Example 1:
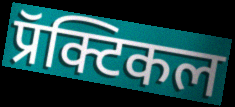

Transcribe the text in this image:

प्रॅक्टिकल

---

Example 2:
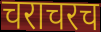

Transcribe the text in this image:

चराचरच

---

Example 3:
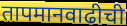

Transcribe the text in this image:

तापमानवाढीची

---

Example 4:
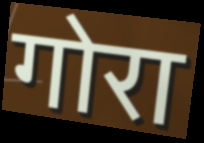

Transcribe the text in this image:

गोरा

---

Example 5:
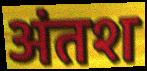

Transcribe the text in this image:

अंतश